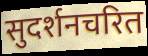
सुदर्शनचरित